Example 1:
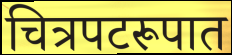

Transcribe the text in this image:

चित्रपटरूपात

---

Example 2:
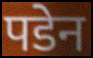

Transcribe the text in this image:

पडेन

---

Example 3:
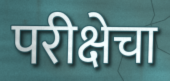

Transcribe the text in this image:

परीक्षेचा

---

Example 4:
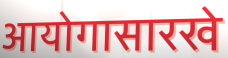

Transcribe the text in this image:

आयोगासारखे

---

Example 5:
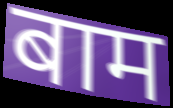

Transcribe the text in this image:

बाम